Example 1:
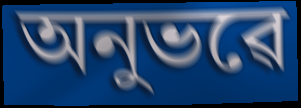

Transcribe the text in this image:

অনুভৱে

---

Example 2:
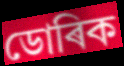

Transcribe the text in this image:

ডোৰিক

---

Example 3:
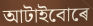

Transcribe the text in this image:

আটাইবোৰে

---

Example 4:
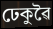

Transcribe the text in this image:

ঢেকুৱৈ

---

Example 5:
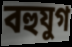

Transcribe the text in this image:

বহুযুগ